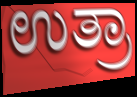
ಉತ್ರಾ